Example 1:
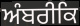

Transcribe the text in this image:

ਅੰਬਰੀਕਿ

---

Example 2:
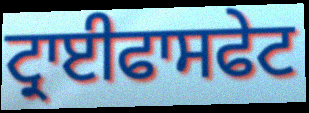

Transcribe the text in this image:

ਟ੍ਰਾਈਫਾਸਫੇਟ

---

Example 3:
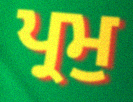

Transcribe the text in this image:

ਪ੍ਰਮੁ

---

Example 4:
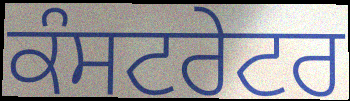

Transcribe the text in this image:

ਕੰਸਟਰੇਟਰ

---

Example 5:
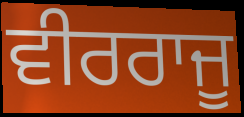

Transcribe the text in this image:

ਵੀਰਰਾਜੂ